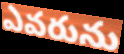
ఎవరును